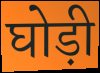
घोड़ी